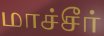
மாச்சீர்